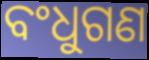
ବଂଧୁଗଣ